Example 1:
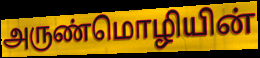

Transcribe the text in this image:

அருண்மொழியின்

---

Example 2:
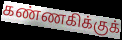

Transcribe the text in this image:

கண்ணகிக்குக்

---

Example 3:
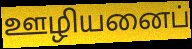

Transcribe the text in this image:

ஊழியனைப்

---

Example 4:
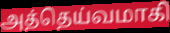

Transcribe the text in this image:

அத்தெய்வமாகி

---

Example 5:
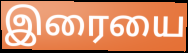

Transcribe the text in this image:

இரையை